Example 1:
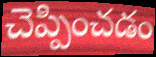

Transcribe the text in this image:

చెప్పించడం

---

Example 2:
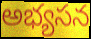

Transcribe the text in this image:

అభ్యసన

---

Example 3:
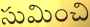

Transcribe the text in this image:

సుమించి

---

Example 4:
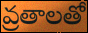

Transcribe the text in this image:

వ్రతాలతో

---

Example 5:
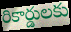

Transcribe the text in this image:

రికార్డులకు